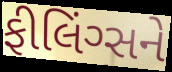
ફીલિંગ્સને